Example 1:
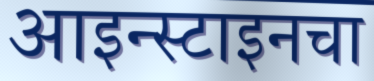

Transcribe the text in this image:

आइन्स्टाइनचा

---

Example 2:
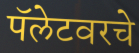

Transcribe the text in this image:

पॅलेटवरचे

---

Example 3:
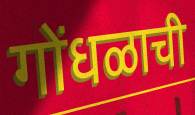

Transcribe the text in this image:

गोंधळाची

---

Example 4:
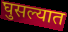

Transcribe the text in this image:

घुसल्यात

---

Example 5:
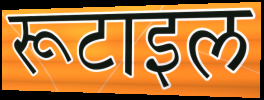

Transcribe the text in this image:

रूटाइल